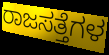
ರಾಜಸತ್ತೆಗಳ